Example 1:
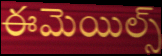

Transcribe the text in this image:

ఈమెయిల్స్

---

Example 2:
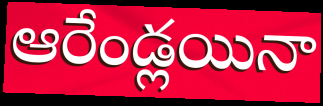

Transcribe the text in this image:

ఆరేండ్లయినా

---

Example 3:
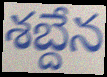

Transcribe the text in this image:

శబ్దేన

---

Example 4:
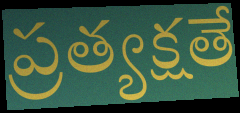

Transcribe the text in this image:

ప్రత్యక్షతే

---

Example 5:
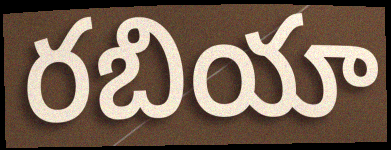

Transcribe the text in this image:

రబియా